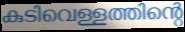
കുടിവെള്ളത്തിന്റെ